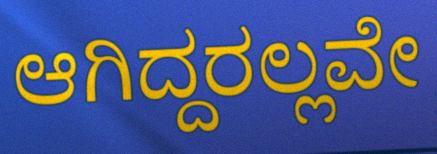
ಆಗಿದ್ದರಲ್ಲವೇ